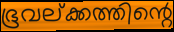
ഭൂവല്ക്കത്തിന്റെ